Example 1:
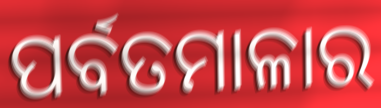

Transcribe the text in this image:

ପର୍ବତମାଳାର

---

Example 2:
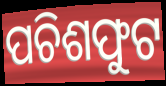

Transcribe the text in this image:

ପଚିଶଫୁଟ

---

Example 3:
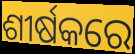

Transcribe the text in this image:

ଶୀର୍ଷକରେ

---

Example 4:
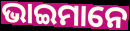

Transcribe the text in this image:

ଭାଇମାନେ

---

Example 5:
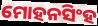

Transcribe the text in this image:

ମୋହନସିଂହ